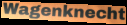
Wagenknecht